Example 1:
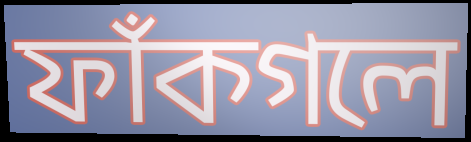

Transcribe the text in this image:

ফাঁকগলে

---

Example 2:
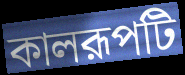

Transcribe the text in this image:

কালরূপটি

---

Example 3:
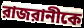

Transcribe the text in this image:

রাজরানীকে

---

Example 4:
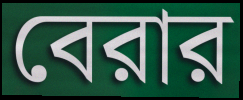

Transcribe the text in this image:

বেরার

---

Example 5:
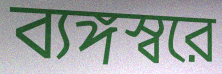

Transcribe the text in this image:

ব্যঙ্গস্বরে